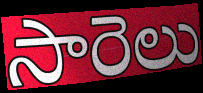
సారెలు